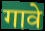
गावे